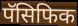
पॅसिफिक